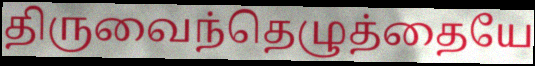
திருவைந்தெழுத்தையே